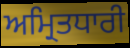
ਅਮ੍ਰਿਤਧਾਰੀ